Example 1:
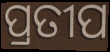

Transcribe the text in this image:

ପ୍ରତୀପ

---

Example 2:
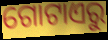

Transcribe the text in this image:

ଗୋଟାଏରୁ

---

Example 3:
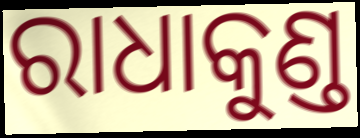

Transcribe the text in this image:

ରାଧାକୁଣ୍ଡ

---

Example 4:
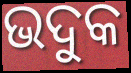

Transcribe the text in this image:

ଭଦୁକ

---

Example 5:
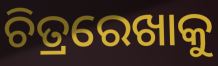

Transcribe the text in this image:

ଚିତ୍ରରେଖାକୁ